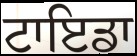
ਟਾਇਡਾ